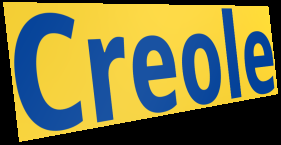
Creole